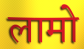
लामो